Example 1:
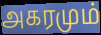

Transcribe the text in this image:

அகரமும்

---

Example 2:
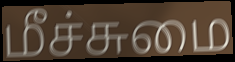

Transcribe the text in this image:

மீச்சுமை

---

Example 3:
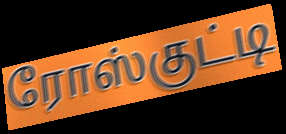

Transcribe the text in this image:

ரோஸ்குட்டி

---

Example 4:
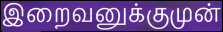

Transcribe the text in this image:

இறைவனுக்குமுன்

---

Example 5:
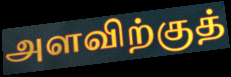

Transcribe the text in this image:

அளவிற்குத்